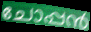
ചോപ്പൻ